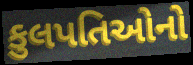
કુલપતિઓનો